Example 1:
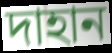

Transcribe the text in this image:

দাহান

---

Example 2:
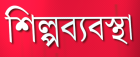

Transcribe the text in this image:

শিল্পব্যবস্থা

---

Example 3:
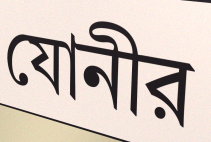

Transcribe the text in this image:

যোনীর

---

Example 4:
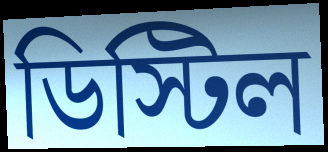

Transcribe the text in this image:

ডিস্টিল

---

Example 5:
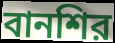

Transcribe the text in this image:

বানশির